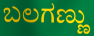
ಬಲಗಣ್ಣು